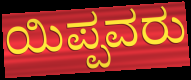
ಯಿಪ್ಪವರು